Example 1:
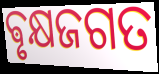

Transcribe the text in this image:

ଵୃକ୍ଷଜଗତ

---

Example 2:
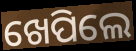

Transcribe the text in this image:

ଖେପିଲେ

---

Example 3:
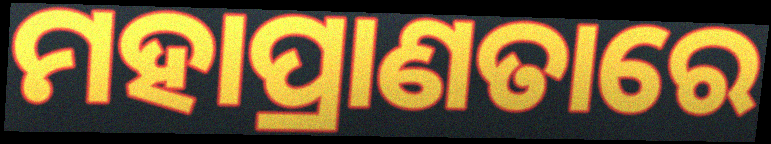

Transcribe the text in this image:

ମହାପ୍ରାଣତାରେ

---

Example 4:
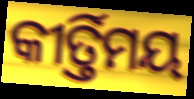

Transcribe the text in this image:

କୀର୍ତ୍ତିମୟ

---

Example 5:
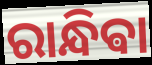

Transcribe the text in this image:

ରାନ୍ଧିଵା